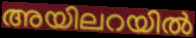
അയിലറയിൽ